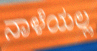
ನಾಳೆಯಲ್ಲ